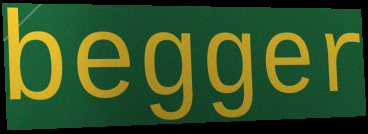
begger